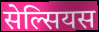
सेल्सियस